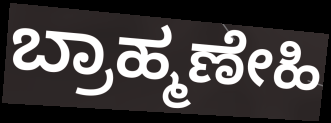
ಬ್ರಾಹ್ಮಣೇಹಿ